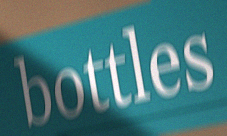
bottles